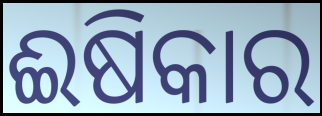
ଈଷିକାର